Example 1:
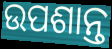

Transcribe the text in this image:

ଉପଶାନ୍ତ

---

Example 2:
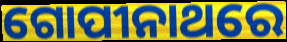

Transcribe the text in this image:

ଗୋପୀନାଥରେ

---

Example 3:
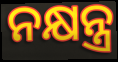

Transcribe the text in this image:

ନକ୍ଷନ୍ତ୍ର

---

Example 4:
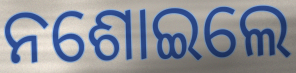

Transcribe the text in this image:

ନଶୋଇଲେ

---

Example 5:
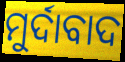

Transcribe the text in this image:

ମୁର୍ଦାବାଦ